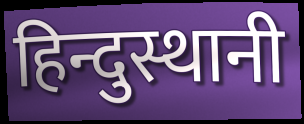
हिन्दुस्थानी